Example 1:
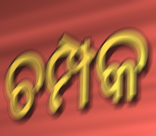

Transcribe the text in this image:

ଚମ୍ପକ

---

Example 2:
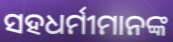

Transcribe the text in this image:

ସହଧର୍ମୀମାନଙ୍କ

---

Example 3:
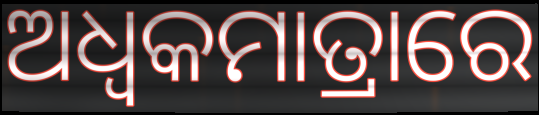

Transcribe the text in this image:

ଅଧ୍ଵକମାତ୍ରାରେ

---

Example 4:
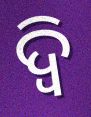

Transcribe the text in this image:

ଦ୍ଵି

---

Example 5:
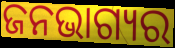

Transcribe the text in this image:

ଜନଭାଗ୍ୟର